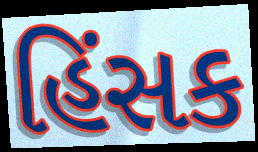
હિંસક